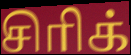
சிரிக்